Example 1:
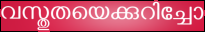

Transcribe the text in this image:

വസ്തുതയെക്കുറിച്ചോ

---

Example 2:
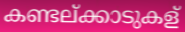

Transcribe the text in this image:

കണ്ടല്ക്കാടുകള്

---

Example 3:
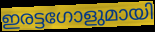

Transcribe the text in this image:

ഇരട്ടഗോളുമായി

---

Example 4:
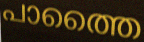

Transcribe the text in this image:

പാത്തൈ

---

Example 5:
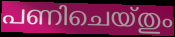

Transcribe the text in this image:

പണിചെയ്തും